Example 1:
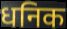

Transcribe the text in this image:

धनिक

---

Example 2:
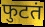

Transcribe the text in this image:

फुटतं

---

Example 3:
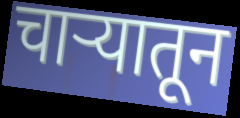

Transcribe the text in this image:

चाऱ्यातून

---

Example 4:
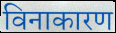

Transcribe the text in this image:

विनाकारण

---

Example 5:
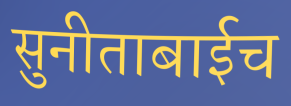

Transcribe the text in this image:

सुनीताबाईच